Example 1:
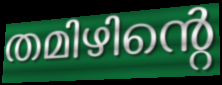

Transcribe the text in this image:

തമിഴിന്റെ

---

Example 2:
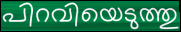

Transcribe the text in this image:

പിറവിയെടുത്തു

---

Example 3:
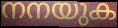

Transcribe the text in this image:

നനയുക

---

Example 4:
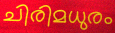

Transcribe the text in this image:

ചിരിമധുരം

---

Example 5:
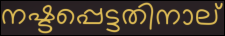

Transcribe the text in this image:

നഷ്ടപ്പെട്ടതിനാല്